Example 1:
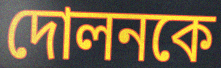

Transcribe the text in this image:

দোলনকে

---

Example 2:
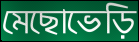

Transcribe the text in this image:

মেছোভেড়ি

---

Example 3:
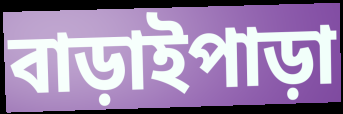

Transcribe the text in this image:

বাড়াইপাড়া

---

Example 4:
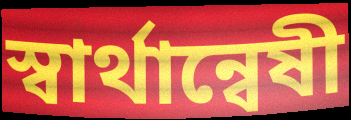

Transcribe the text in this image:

স্বার্থান্বেষী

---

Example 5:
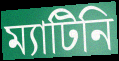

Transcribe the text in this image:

ম্যাটিনি